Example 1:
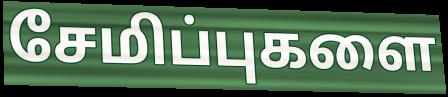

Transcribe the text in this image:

சேமிப்புகளை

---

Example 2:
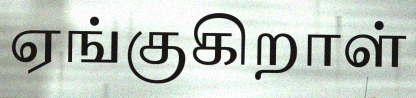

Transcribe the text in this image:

ஏங்குகிறாள்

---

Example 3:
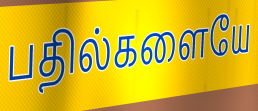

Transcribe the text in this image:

பதில்களையே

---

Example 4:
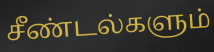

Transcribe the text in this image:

சீண்டல்களும்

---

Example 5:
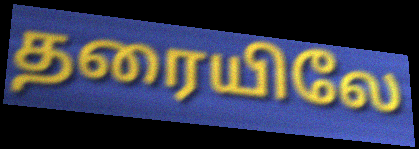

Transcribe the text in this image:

தரையிலே